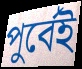
পুর্বেই